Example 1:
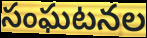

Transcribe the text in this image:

సంఘటనల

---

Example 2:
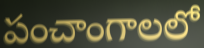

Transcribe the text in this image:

పంచాంగాలలో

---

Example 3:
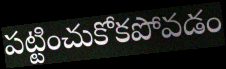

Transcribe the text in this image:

పట్టించుకోకపోవడం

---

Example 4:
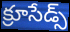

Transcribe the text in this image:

క్రూసేడ్స్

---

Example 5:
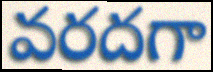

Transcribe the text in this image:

వరదగా